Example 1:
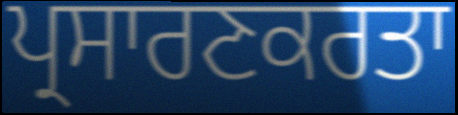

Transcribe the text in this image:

ਪ੍ਰਸਾਰਣਕਰਤਾ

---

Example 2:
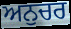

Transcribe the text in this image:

ਅਨੁਚਰ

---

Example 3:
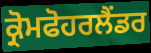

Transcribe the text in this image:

ਕ੍ਰੋਮਫੋਹਰਲੈਂਡਰ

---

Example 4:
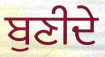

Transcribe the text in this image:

ਬੁਣੀਦੇ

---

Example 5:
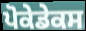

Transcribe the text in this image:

ਪੋਕੇਡੇਕਸ